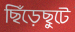
ছিঁড়েছুটে